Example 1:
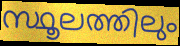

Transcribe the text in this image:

സ്ഥൂലത്തിലും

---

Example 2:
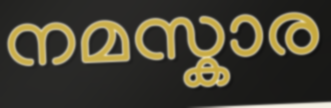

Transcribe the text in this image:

നമസ്കാര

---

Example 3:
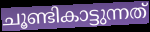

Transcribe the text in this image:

ചൂണ്ടികാട്ടുന്നത്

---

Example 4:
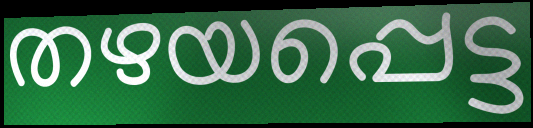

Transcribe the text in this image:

തഴയപ്പെട്ട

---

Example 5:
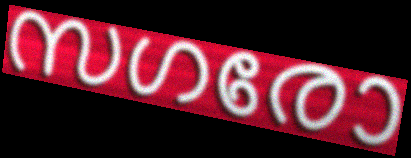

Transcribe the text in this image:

സഗരോ